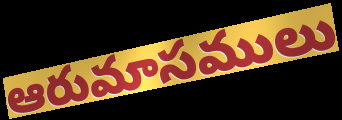
ఆరుమాసములు